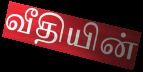
வீதியின்